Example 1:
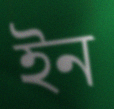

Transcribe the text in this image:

ইন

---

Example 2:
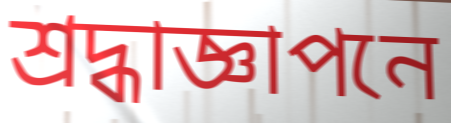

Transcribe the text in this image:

শ্রদ্ধাজ্ঞাপনে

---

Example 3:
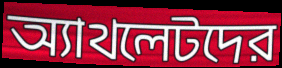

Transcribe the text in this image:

অ্যাথলেটদের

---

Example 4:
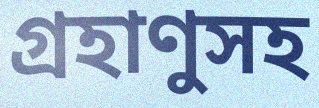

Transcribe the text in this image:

গ্রহাণুসহ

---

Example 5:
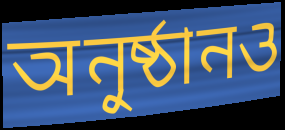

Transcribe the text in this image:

অনুষ্ঠানও